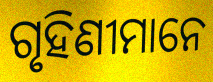
ଗୃହିଣୀମାନେ